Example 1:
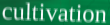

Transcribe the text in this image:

cultivation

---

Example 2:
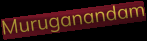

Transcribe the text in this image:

Muruganandam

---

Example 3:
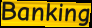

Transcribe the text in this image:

Banking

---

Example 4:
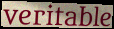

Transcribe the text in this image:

veritable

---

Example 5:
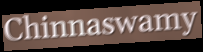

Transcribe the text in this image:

Chinnaswamy